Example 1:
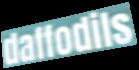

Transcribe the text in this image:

daffodils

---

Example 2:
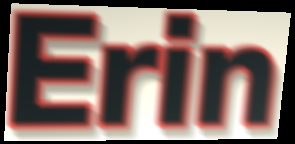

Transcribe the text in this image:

Erin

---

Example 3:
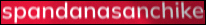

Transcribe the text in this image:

spandanasanchike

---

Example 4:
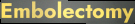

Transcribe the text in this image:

Embolectomy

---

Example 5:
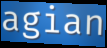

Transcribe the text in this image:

agian